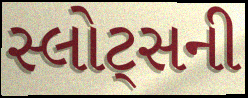
સ્લોટ્સની